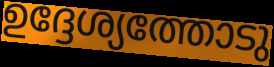
ഉദ്ദേശ്യത്തോടു